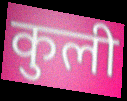
कुली